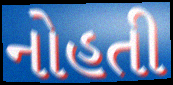
નોહતી